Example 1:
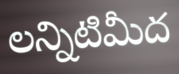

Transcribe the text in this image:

లన్నిటిమీద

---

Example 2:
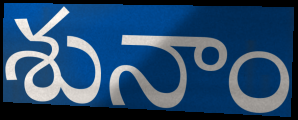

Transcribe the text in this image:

శునాం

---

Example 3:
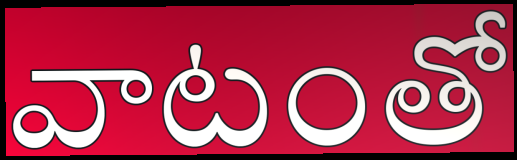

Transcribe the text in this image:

వాటంతో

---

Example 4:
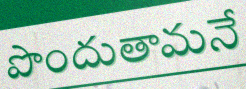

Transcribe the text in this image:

పొందుతామనే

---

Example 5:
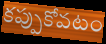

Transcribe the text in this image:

కప్పుకోవటం